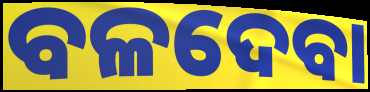
ବଳଦେବା